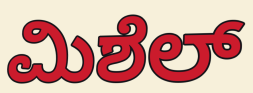
ಮಿಶೆಲ್